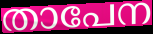
താപേന